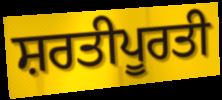
ਸ਼ਰਤੀਪੂਰਤੀ